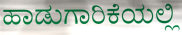
ಹಾಡುಗಾರಿಕೆಯಲ್ಲಿ